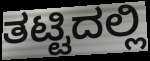
ತಟ್ಟಿದಲ್ಲಿ